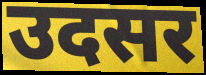
उदसर